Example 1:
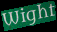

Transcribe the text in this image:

Wight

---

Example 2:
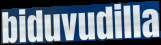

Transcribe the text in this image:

biduvudilla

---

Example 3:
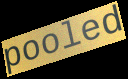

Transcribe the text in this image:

pooled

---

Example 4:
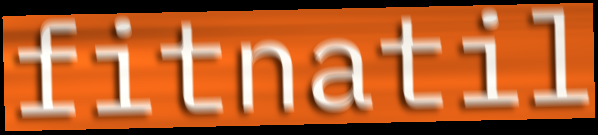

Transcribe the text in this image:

fitnatil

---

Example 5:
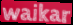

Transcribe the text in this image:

waikar